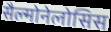
सैल्मोनेलोसिस